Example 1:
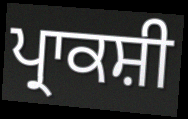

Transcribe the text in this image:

ਪ੍ਰਾਕਸ਼ੀ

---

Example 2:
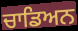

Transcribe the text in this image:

ਚਾਡਿਅਨ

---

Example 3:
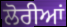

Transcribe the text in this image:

ਲੋਰੀਆਂ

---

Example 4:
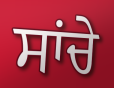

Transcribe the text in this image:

ਸਾਂਚੇ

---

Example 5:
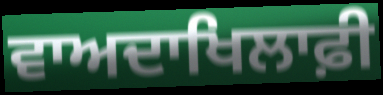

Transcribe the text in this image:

ਵਾਅਦਾਖਿਲਾਫ਼ੀ